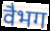
वैभग